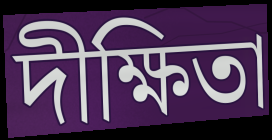
দীক্ষিতা